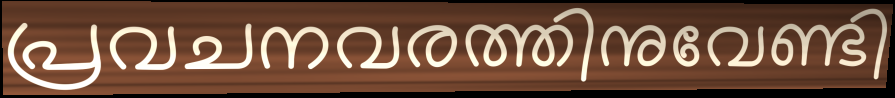
പ്രവചനവരത്തിനുവേണ്ടി